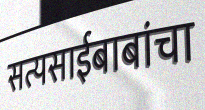
सत्यसाईबाबांचा